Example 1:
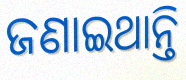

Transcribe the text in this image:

ଜଣାଇଥାନ୍ତି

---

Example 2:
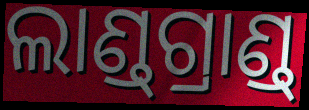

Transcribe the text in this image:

ଲାଣ୍ଡ୍‍ଗ୍ରାଣ୍ଡ୍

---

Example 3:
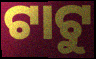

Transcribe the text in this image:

ଟାଟୁ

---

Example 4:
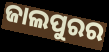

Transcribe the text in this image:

ଜାଲପୁରର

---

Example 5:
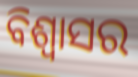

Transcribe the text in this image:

ବିଶ୍ୱାସର